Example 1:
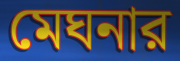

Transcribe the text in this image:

মেঘনার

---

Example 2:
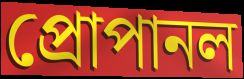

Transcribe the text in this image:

প্রোপানল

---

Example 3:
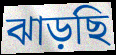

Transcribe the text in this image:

ঝাড়ছি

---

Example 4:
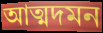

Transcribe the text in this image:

আত্মদমন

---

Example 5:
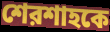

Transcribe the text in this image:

শেরশাহকে